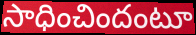
సాధించిందంటూ